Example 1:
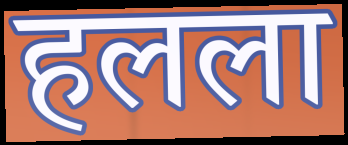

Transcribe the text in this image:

हलला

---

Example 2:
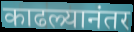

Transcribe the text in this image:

काढल्यानंतर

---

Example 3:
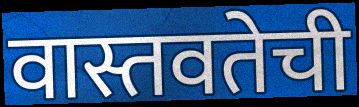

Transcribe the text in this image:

वास्तवतेची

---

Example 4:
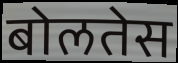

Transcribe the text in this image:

बोलतेस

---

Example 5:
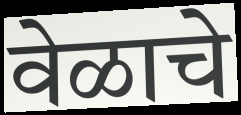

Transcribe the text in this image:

वेळाचे